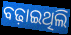
ବଢ଼ାଇଥିଲି